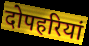
दोपहरियां